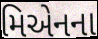
મિએનના